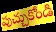
పుచ్చుకోండి